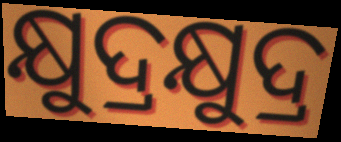
କ୍ଷୁଦ୍ରକ୍ଷୁଦ୍ର